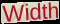
Width